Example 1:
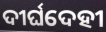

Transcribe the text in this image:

ଦୀର୍ଘଦେହୀ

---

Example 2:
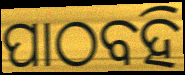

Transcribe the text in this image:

ପାଠବହି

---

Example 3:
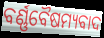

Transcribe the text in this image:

ବର୍ଣ୍ଣବୈଷମ୍ୟବାଦ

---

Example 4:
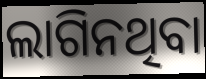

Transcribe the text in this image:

ଲାଗିନଥିବା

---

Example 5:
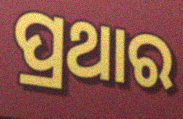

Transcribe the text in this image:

ପ୍ରଥାର